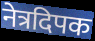
नेत्रदिपक